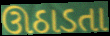
ઊઠાડતા